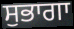
ਸੁਭਾਗਾ